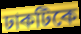
ঢাকটিকে